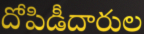
దోపిడీదారుల